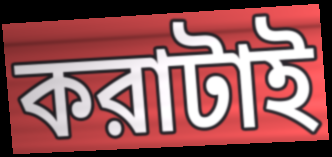
করাটাই